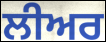
ਲੀਅਰ